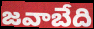
జవాబేది